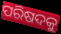
ପରିଷଦକୁ